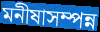
মনীষাসম্পন্ন